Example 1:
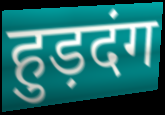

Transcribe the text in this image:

हुड़दंग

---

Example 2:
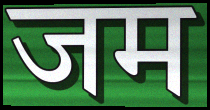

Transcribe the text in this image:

जम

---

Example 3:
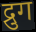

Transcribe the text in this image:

द्रुग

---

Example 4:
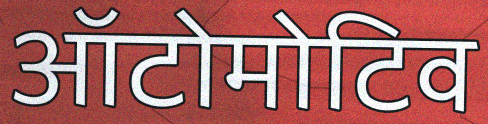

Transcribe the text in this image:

ऑटोमोटिव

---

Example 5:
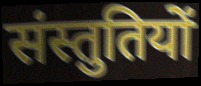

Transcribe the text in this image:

संस्तुतियों